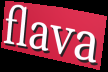
flava